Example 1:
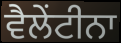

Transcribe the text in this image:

ਵੈਲੇਂਟੀਨਾ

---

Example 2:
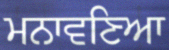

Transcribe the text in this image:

ਮਨਾਵਣਿਆ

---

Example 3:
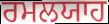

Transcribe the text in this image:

ਰਮਲਯਾਹ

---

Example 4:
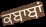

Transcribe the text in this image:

ਕਬਾਬਾਂ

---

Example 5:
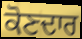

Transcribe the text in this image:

ਕੋਣਦਾਰ